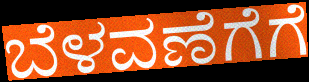
ಬೆಳವಣೆಗೆಗೆ